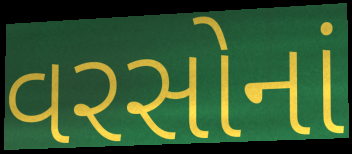
વરસોનાં